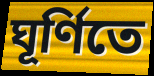
ঘূর্ণিতে